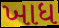
ખાધ